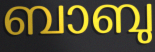
ബാബു